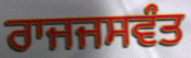
ਰਾਜਜਸਵੰਤ